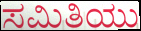
ಸಮಿತಿಯು